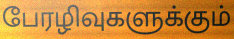
பேரழிவுகளுக்கும்